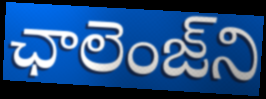
ఛాలెంజ్‌ని